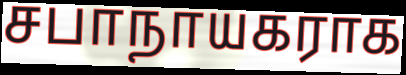
சபாநாயகராக